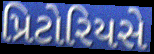
પ્રિટોરિયસે